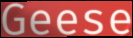
Geese